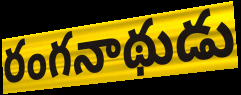
రంగనాథుడు